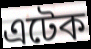
এটেক